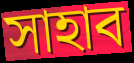
সাহাব